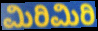
ಮಿರಿಮಿರಿ